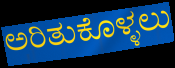
ಅರಿತುಕೊಳ್ಳಲು